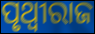
ପୃଥ୍ବୀରାଜ